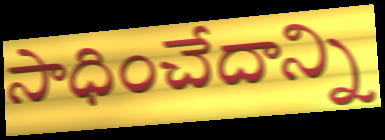
సాధించేదాన్ని